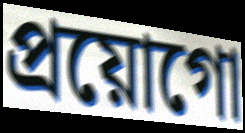
প্ৰয়োগো